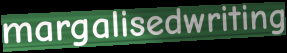
margalisedwriting